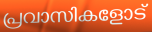
പ്രവാസികളോട്